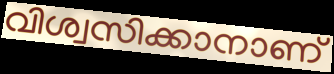
വിശ്വസിക്കാനാണ്